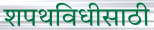
शपथविधीसाठी